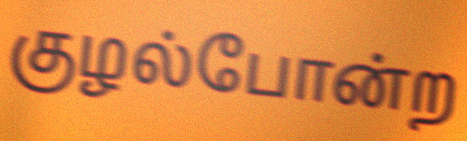
குழல்போன்ற